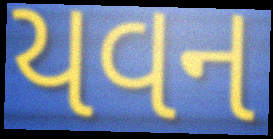
યવન